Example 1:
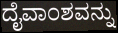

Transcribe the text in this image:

ದೈವಾಂಶವನ್ನು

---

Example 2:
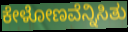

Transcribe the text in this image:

ಕೇಳೋಣವೆನ್ನಿಸಿತು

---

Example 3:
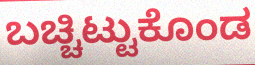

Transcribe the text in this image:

ಬಚ್ಚಿಟ್ಟುಕೊಂಡ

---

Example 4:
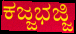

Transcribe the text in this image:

ಕಜ್ಜಭಜ್ಜಿ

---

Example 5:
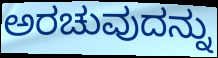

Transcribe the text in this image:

ಅರಚುವುದನ್ನು